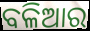
ବଳିଆର